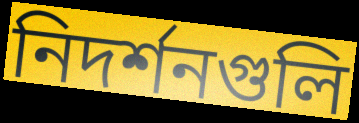
নিদর্শনগুলি